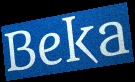
Beka